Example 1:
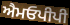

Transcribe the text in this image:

ਐਮਓਪੀਪੀ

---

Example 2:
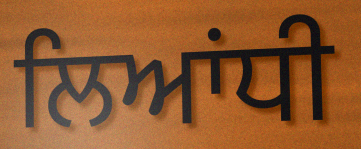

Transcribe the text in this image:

ਲਿਆਂਧੀ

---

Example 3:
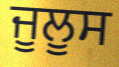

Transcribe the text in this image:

ਜੂਲੂਸ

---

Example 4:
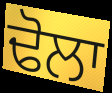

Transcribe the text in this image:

ਢੋਲਾ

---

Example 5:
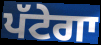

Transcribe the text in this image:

ਪੱਟੇਗਾ